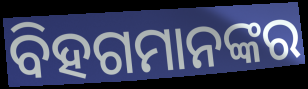
ବିହଗମାନଙ୍କର